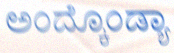
ಅಂದ್ಕೊಂಡ್ಯಾ